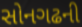
સોનગઢની